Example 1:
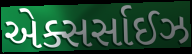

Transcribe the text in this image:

એક્સર્સાઈઝ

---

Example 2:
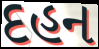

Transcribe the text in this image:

દહન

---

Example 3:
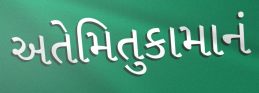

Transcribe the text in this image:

અતેમિતુકામાનં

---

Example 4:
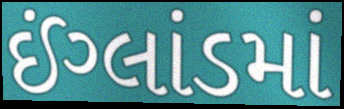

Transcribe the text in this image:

ઈંગ્લાંડમાં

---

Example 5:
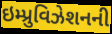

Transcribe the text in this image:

ઇમ્પ્રુવિઝેશનની